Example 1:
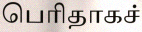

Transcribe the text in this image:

பெரிதாகச்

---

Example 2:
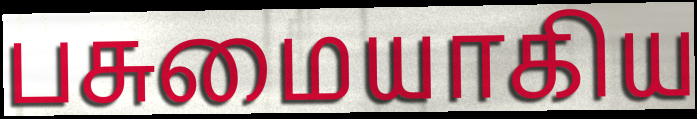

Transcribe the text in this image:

பசுமையாகிய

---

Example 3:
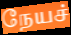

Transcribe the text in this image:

நேயச்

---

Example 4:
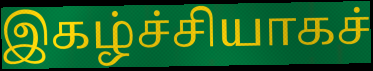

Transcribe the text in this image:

இகழ்ச்சியாகச்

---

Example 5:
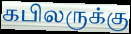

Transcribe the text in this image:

கபிலருக்கு